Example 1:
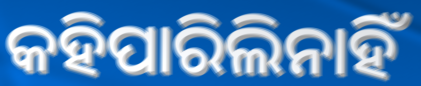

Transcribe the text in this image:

କହିପାରିଲିନାହିଁ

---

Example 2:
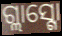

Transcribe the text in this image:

ଗ୍ଲାସ୍ଗୋ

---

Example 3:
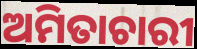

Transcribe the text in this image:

ଅମିତାଚାରୀ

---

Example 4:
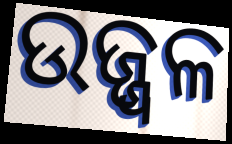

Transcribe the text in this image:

ଉଜ୍ଜ୍ବଳ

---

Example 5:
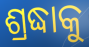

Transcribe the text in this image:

ଶ୍ରଦ୍ଧାକୁ